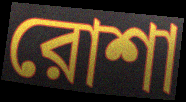
রোশা